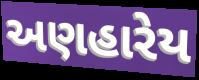
અણહારેય